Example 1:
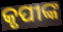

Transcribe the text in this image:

କୃପୀଙ୍କ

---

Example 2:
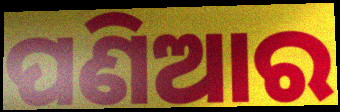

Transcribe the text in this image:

ପଣିଆର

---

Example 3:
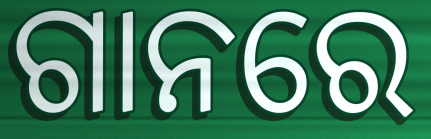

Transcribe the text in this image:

ଗାନରେ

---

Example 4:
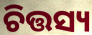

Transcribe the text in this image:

ଚିତ୍ତସ୍ୟ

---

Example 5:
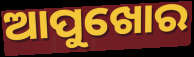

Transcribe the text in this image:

ଆପୁଖୋର